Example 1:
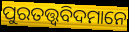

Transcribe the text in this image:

ପୁରତତ୍ତ୍ୱବିଦମାନେ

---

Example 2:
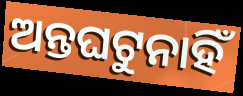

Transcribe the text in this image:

ଅନ୍ତଘଟୁନାହିଁ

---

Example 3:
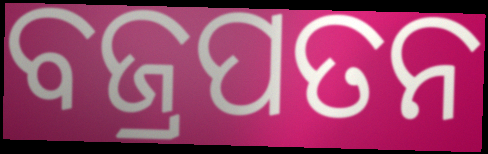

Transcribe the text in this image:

ବଜ୍ରପତନ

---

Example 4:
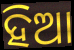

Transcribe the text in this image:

ହିଆ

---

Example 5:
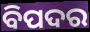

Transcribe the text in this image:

ବିପଦର